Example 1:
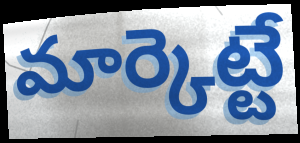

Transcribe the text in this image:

మార్కెట్టే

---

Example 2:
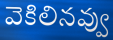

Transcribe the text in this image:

వెకిలినవ్వు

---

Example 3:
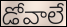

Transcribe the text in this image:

డోవాలే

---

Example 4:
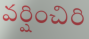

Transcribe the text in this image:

వర్షించిరి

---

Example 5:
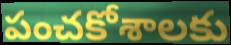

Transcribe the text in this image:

పంచకోశాలకు